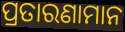
ପ୍ରତାରଣାମାନ